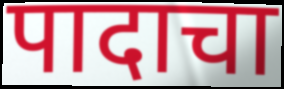
पादाचा